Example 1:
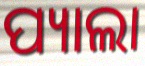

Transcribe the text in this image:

ପ୍ୟାଲା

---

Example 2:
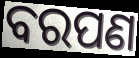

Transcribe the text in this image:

ବରପଣ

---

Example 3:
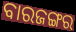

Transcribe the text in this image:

ବାରଜଙ୍ଗର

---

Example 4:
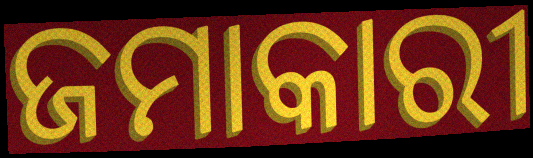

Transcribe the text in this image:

ଜମାକାରୀ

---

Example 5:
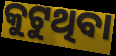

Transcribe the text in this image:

କୁଟୁଥିବା